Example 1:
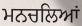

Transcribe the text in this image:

ਮਨਚਲਿਆਂ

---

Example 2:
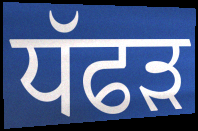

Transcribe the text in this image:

ਧੱਫੜ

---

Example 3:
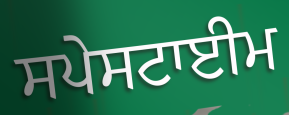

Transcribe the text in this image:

ਸਪੇਸਟਾਈਮ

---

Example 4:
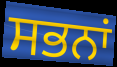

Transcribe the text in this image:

ਸਭਨਾਂ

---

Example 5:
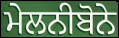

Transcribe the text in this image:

ਮੇਲਨੀਬੋਨੇ